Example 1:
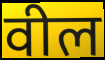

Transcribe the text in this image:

वील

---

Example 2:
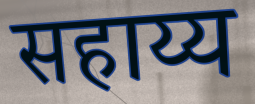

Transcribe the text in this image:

सहाय्य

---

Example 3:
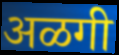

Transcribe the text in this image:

अळगी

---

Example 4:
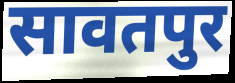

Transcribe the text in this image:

सावतपुर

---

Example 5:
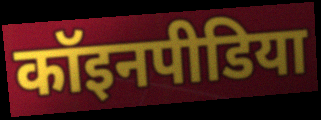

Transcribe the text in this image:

कॉइनपीडिया